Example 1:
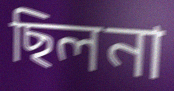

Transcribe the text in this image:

ছিলনা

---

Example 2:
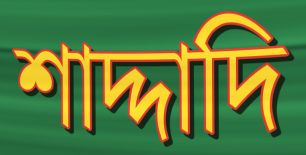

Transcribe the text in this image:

শাদ্দাদি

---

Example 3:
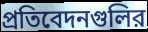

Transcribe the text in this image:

প্রতিবেদনগুলির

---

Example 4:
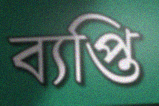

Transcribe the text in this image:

ব্যপ্তি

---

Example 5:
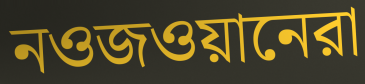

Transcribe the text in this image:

নওজওয়ানেরা